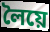
লৈয়ে